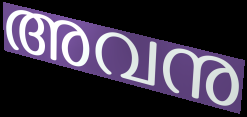
അവനു